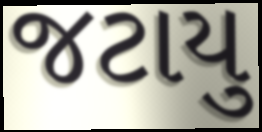
જટાયુ